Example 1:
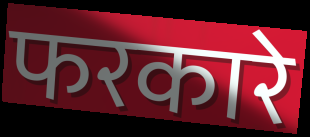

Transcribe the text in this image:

फरकारे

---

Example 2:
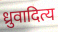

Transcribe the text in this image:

ध्रुवादित्य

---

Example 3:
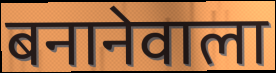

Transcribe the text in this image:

बनानेवाला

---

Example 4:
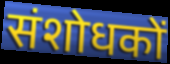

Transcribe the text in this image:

संशोधकों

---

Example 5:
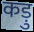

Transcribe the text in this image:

कड़ु